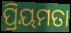
ପ୍ରିୟମତା